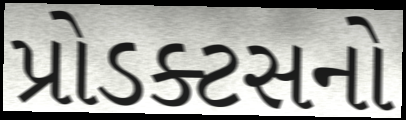
પ્રોડક્ટસનો